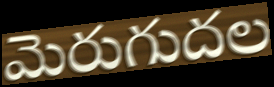
మెరుగుదల